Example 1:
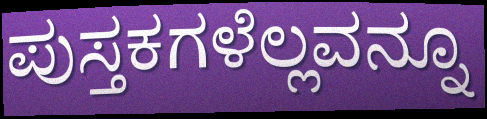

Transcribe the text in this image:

ಪುಸ್ತಕಗಳೆಲ್ಲವನ್ನೂ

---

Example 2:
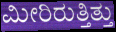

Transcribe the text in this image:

ಮೀರಿರುತ್ತಿತ್ತು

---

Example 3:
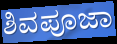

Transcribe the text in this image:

ಶಿವಪೂಜಾ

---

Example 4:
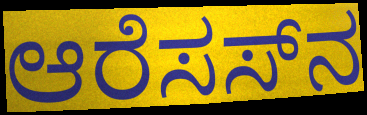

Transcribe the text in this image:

ಆರೆಸಸ್‌ನ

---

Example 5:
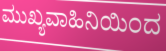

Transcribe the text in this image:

ಮುಖ್ಯವಾಹಿನಿಯಿಂದ